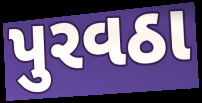
પુરવઠા